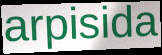
arpisida